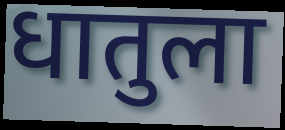
धातुला